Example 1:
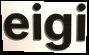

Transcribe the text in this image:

eigi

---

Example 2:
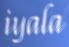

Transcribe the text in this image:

iyala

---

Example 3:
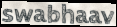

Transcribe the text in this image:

swabhaav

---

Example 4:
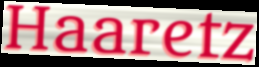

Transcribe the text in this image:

Haaretz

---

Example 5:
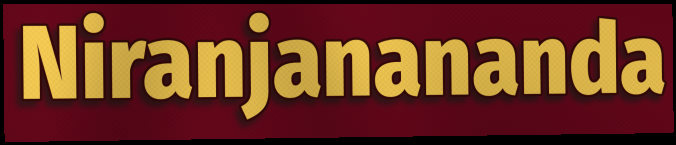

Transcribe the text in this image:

Niranjanananda